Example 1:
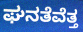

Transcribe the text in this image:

ಘನತೆವೆತ್ತ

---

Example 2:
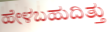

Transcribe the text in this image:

ಹೇಳಬಹುದಿತ್ತು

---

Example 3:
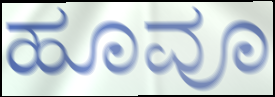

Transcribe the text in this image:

ಹೂವೂ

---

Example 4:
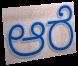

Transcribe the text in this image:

ಆರೆ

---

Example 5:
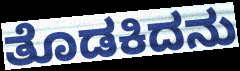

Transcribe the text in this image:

ತೊಡಕಿದನು